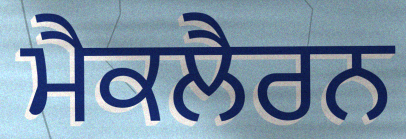
ਮੈਕਲੈਰਨ